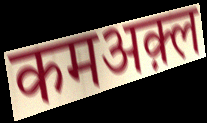
कमअक़्ल